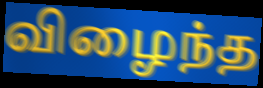
விழைந்த